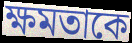
ক্ষমতাকে